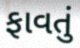
ફાવતું